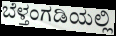
ಬೆಳ್ತಂಗಡಿಯಲ್ಲಿ